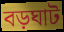
বড়ঘাট